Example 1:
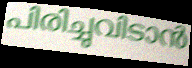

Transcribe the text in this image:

പിരിച്ചുവിടാൻ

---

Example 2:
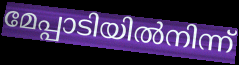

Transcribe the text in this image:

മേപ്പാടിയിൽനിന്ന്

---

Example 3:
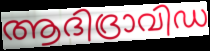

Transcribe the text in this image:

ആദിദ്രാവിഡ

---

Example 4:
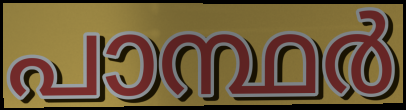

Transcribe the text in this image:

പാന്ഥർ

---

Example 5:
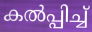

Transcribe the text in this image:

കൽപ്പിച്ച്